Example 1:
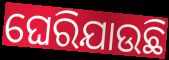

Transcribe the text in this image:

ଘେରିଯାଉଛି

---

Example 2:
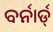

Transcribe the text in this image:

ବର୍ନାର୍ଡ୍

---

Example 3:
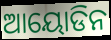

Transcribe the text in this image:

ଆୟୋଡିନ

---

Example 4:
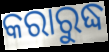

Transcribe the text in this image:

କରାରୁଦ୍ଧ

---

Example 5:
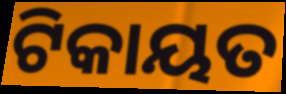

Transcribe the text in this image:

ଟିକାୟତ